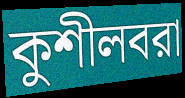
কুশীলবরা